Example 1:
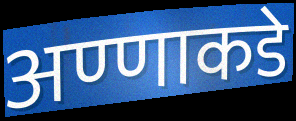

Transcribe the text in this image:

अण्णाकडे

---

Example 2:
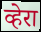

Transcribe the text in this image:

व्हेरा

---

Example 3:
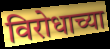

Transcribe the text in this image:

विरोधाच्या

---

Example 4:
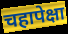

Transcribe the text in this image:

चहापेक्षा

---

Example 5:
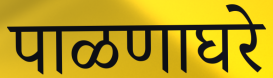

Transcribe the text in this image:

पाळणाघरे